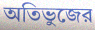
অতিভুজের